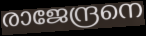
രാജേന്ദ്രനെ